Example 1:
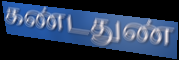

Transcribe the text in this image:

கண்டதுண்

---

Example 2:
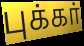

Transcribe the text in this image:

புக்கர்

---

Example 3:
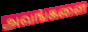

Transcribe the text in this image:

அவங்களை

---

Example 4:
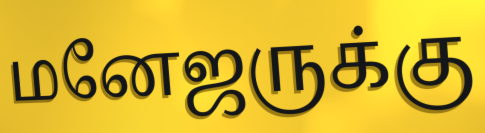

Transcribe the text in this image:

மனேஜருக்கு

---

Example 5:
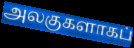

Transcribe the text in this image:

அலகுகளாகப்